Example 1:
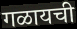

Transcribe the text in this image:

गळायची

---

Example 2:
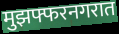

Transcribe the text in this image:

मुझफ्फरनगरात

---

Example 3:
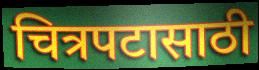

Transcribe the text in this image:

चित्रपटासाठी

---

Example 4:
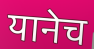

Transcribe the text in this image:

यानेच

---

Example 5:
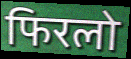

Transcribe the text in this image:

फिरलो